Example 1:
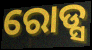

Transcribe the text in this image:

ରୋଡ୍ସ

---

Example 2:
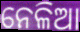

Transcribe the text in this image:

ନେଳିଆ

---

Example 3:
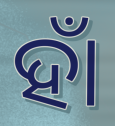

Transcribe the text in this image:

ହାଁ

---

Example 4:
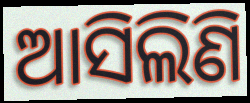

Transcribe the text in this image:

ଆସିଲିଣି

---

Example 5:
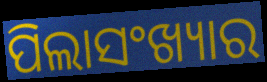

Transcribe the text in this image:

ପିଲାସଂଖ୍ୟାର